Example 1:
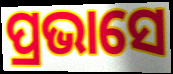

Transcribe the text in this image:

ପ୍ରଭାସେ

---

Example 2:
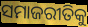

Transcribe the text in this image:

ସମାଜରୀତିକୁ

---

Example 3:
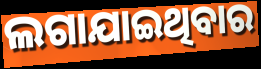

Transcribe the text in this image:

ଲଗାଯାଇଥିବାର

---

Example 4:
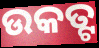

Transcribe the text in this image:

ଉକତ୍ଟ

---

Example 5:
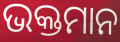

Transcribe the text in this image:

ଭକ୍ତମାନ